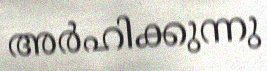
അർഹിക്കുന്നു